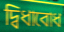
দ্বিধাবোধ